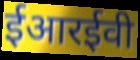
ईआरईवी